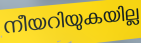
നീയറിയുകയില്ല